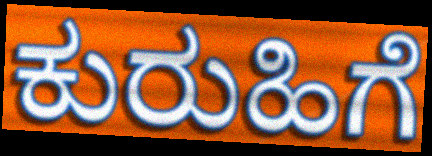
ಕುರುಹಿಗೆ